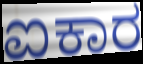
ಐಕಾರ